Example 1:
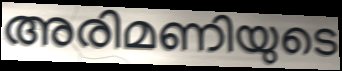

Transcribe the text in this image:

അരിമണിയുടെ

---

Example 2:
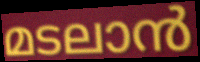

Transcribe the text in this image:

മടലാൻ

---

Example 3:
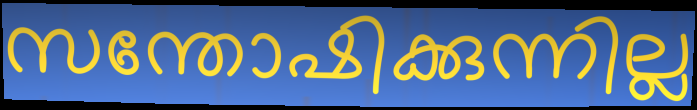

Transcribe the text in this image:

സന്തോഷിക്കുന്നില്ല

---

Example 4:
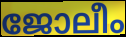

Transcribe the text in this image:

ജോലീം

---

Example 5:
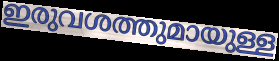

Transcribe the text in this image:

ഇരുവശത്തുമായുള്ള